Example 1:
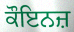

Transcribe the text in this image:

ਕੌਇਨਜ਼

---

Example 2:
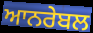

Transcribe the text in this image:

ਆਨਰੇਬਲ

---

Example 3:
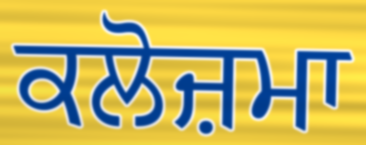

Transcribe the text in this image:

ਕਲੋਜ਼ਮਾ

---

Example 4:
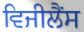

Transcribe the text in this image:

ਵਿਜੀਲੈਂਸ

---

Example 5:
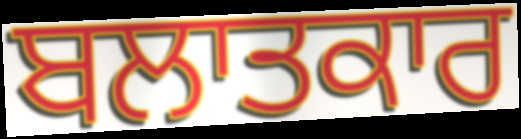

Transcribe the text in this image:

ਬਲਾਤਕਾਰ